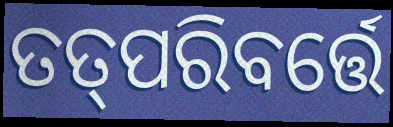
ତତ୍‌ପରିବର୍ତ୍ତେ